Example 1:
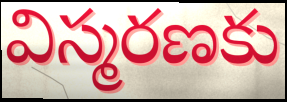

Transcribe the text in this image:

విస్మరణకు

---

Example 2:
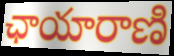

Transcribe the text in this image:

ఛాయారాణి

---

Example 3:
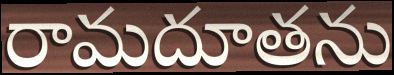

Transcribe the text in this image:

రామదూతను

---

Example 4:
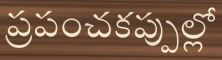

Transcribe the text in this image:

ప్రపంచకప్పుల్లో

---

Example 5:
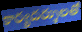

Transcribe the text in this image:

కార్యదర్శులతో